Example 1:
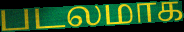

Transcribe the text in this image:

படலமாக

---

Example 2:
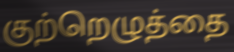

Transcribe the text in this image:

குற்றெழுத்தை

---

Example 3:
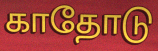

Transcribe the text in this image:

காதோடு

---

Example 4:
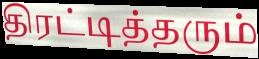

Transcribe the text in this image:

திரட்டித்தரும்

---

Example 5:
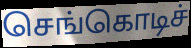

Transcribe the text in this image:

செங்கொடிச்